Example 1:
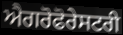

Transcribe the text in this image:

ਐਗਰੋਫੋਰੇਸਟਰੀ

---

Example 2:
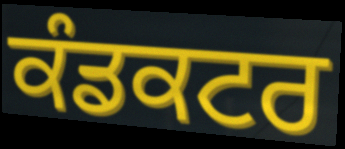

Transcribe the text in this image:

ਕੰਡਕਟਰ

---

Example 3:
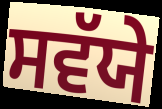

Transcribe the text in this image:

ਸਵੱਯੇ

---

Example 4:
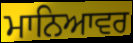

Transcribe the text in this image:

ਮਾਨਿਆਵਰ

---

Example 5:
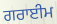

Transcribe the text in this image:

ਗਰਾਈਮ